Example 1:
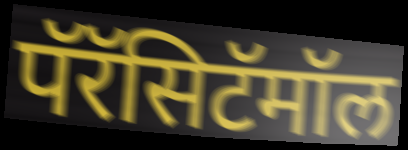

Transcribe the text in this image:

पॅरॅसिटॅमॉल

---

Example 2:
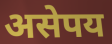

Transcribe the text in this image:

असेपय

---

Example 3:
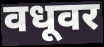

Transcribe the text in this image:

वधूवर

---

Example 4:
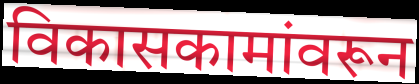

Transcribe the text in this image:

विकासकामांवरून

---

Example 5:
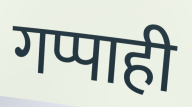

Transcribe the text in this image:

गप्पाही